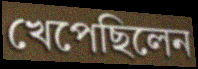
খেপেছিলেন